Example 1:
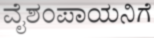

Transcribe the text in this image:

ವೈಶಂಪಾಯನಿಗೆ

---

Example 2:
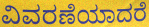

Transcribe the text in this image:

ವಿವರಣೆಯಾದರೆ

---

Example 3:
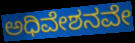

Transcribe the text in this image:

ಅಧಿವೇಶನವೇ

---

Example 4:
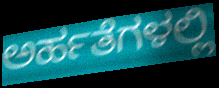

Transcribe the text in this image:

ಅರ್ಹತೆಗಳಲ್ಲಿ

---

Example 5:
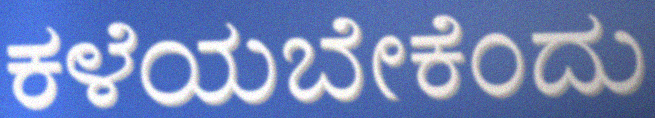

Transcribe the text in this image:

ಕಳೆಯಬೇಕೆಂದು